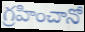
గ్రహించానో